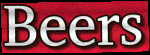
Beers